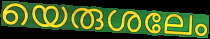
യെരുശലേം